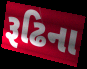
રૂઢિના